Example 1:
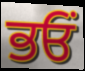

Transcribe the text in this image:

ਭਓਂ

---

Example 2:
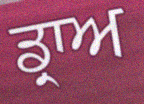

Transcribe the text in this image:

ਡ੍ਰਾਅ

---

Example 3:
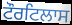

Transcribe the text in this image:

ਟੌਰਟਿਲਾਸ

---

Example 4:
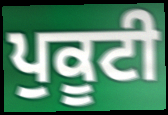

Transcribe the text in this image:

ਪੁਕੂਟੀ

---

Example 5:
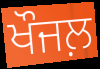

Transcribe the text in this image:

ਖੌਜਲ਼